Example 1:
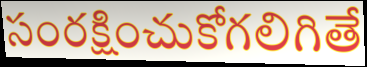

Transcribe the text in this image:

సంరక్షించుకోగలిగితే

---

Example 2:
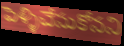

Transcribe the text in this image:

పెళ్ళిచేసుకోనని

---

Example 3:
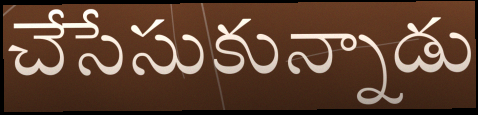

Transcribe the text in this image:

చేసేసుకున్నాడు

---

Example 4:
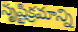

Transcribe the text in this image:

సృష్టిక్రమాన్ని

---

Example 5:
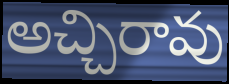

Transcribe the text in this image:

అచ్చిరావు